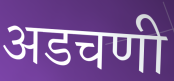
अडचणी